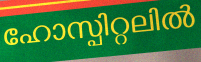
ഹോസ്പിറ്റലിൽ